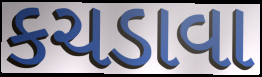
કચડાવા